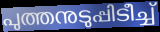
പുത്തനുടുപ്പിടീച്ച്